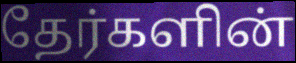
தேர்களின்